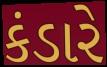
કંડારે